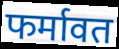
फर्मावत